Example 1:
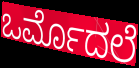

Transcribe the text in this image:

ಒರ್ಮೊದಲೆ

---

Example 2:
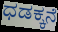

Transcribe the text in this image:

ಧಡಕ್ಕನೆ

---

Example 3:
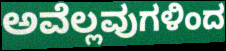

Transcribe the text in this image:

ಅವೆಲ್ಲವುಗಳಿಂದ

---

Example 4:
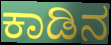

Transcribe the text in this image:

ಕಾಡಿನ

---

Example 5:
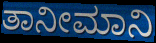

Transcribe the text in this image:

ತಾನೀಮಾನಿ